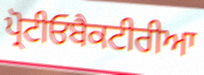
ਪ੍ਰੋਟੀਓਬੈਕਟੀਰੀਆ